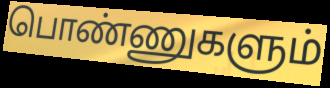
பொண்ணுகளும்